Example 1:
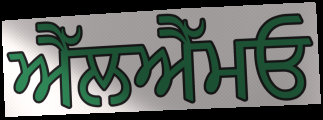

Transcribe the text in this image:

ਐੱਲਐੱਮਓ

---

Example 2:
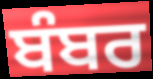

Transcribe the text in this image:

ਬੰਬਰ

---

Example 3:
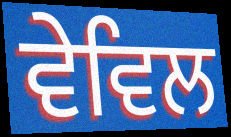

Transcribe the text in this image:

ਵੇਵਿਲ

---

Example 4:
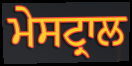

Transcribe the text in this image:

ਮੇਸਟ੍ਰਾਲ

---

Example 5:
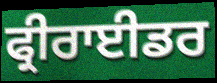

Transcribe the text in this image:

ਫ੍ਰੀਰਾਈਡਰ